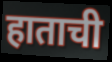
हाताची